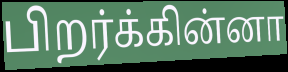
பிறர்க்கின்னா